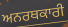
ਅਨਰਥਕਾਰੀ